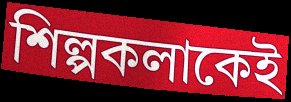
শিল্পকলাকেই